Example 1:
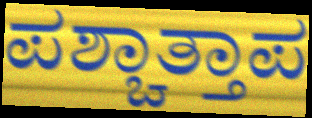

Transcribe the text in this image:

ಪಶ್ಚಾತ್ತಾಪ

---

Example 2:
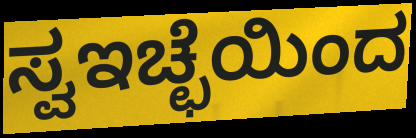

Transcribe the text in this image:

ಸ್ವಇಚ್ಛೆಯಿಂದ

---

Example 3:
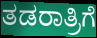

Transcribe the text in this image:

ತಡರಾತ್ರಿಗೆ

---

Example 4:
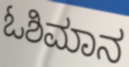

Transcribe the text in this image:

ಓಶಿಮಾನ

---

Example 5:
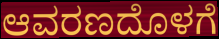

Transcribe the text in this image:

ಆವರಣದೊಳಗೆ